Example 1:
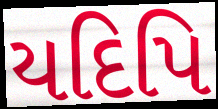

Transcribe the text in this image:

યદિપિ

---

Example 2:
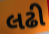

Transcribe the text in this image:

લઢી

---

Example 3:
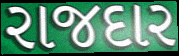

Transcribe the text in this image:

રાજદાર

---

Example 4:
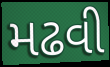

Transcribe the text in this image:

મઢવી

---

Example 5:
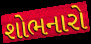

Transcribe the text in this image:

શોભનારો